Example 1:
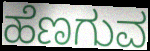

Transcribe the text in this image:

ಹೆಣಗುವ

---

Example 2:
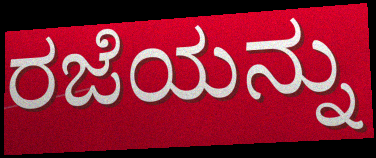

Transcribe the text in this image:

ರಜೆಯನ್ನು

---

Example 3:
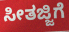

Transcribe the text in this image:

ಸೀತಜ್ಜಿಗೆ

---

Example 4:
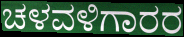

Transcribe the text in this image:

ಚಳವಳಿಗಾರರ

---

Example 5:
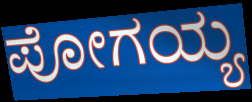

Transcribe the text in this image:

ಪೋಗಯ್ಯ